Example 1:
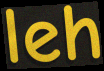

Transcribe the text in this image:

leh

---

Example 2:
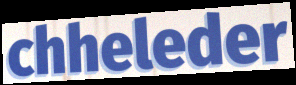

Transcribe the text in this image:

chheleder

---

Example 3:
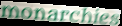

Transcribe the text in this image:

monarchies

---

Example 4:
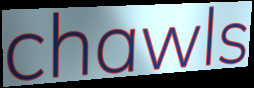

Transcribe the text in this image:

chawls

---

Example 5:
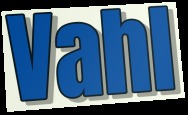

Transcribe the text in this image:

Vahl